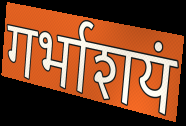
गर्भाशयं